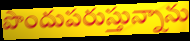
పొందుపరుస్తున్నాను